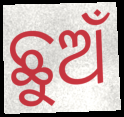
ଛୁଅଁ